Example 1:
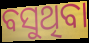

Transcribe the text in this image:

ବସୁଥିବା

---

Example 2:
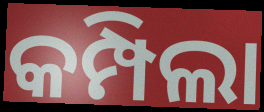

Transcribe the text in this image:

କମ୍ପିଲା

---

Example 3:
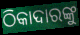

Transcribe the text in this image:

ଠିକାଦାରଙ୍କୁ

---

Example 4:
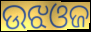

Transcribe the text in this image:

ଉଝଓଜ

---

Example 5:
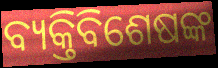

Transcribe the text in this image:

ବ୍ୟକ୍ତିବିଶେଷଙ୍କ